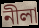
নীলা